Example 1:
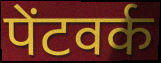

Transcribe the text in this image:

पेंटवर्क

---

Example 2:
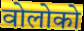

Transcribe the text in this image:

वोलोको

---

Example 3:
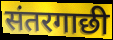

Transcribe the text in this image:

संतरगाछी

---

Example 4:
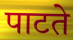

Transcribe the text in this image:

पाटते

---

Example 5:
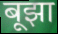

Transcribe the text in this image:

बूझा